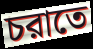
চরাতে